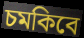
চমকিবে